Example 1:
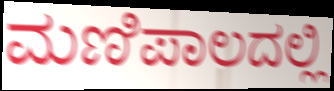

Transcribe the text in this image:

ಮಣಿಪಾಲದಲ್ಲಿ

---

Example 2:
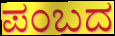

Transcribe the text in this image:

ಪಂಬದ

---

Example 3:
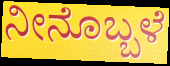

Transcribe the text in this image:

ನೀನೊಬ್ಬಳೆ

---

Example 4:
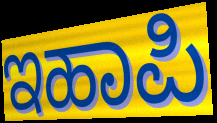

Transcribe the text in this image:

ಇಹಾಪಿ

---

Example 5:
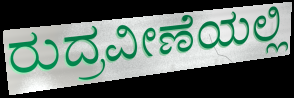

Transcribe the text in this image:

ರುದ್ರವೀಣೆಯಲ್ಲಿ